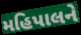
મહિપાલને